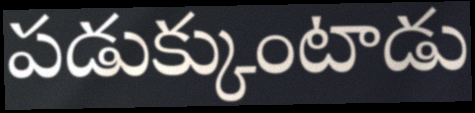
పడుక్కుంటాడు